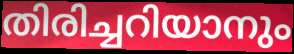
തിരിച്ചറിയാനും